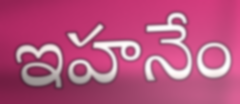
ఇహనేం